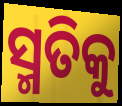
ସ୍ମତିକୁ